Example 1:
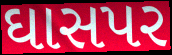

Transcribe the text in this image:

ઘાસપર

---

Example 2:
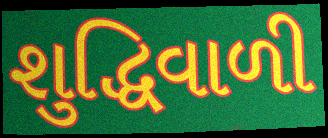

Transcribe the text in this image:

શુદ્ધિવાળી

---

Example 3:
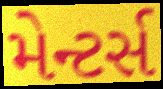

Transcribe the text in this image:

મેન્ટર્સ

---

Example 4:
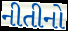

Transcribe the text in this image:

નીતીનો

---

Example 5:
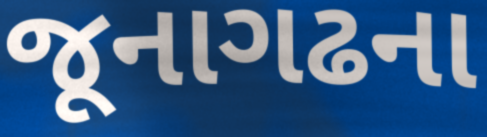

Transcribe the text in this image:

જૂનાગઢના